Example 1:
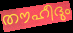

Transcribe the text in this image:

തൗഹീദും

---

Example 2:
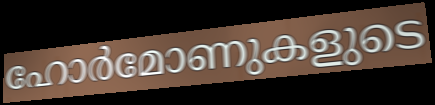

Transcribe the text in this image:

ഹോർമോണുകളുടെ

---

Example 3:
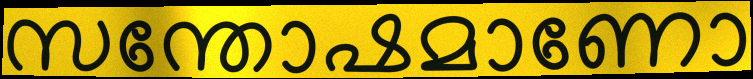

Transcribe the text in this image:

സന്തോഷമാണോ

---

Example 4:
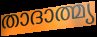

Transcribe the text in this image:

താദാത്മ്യ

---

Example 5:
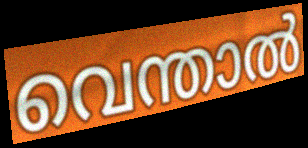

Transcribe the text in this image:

വെന്താൽ